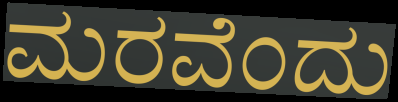
ಮರವೆಂದು